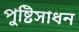
পুষ্টিসাধন